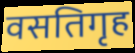
वसतिगृह